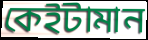
কেইটামান